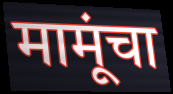
मामूंचा